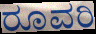
ರೂವರಿ